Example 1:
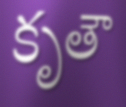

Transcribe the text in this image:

కృతౌ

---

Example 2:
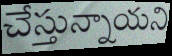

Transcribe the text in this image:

చేస్తున్నాయని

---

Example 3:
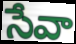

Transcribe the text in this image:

సేవా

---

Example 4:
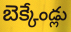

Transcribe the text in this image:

బెక్కేండ్లు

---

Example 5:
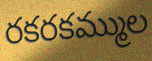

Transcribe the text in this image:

రకరకమ్ముల